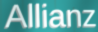
Allianz